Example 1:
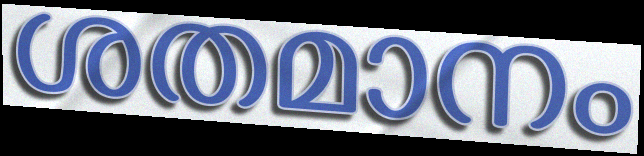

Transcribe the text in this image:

ശതമാനം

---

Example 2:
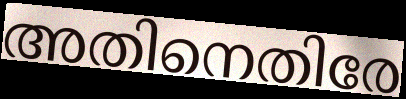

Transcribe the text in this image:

അതിനെതിരേ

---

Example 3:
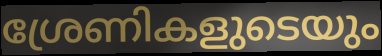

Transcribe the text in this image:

ശ്രേണികളുടെയും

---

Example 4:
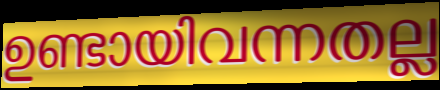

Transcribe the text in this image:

ഉണ്ടായിവന്നതല്ല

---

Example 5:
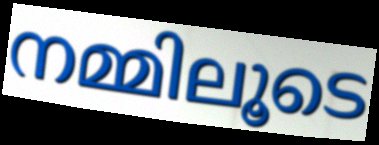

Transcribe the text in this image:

നമ്മിലൂടെ